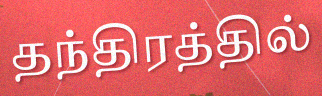
தந்திரத்தில்